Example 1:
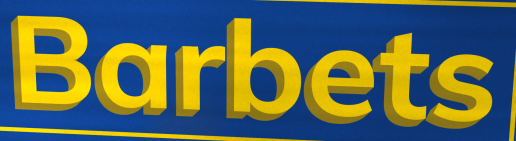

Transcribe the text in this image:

Barbets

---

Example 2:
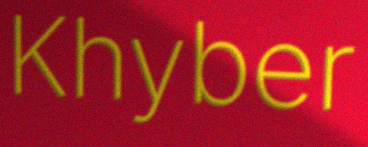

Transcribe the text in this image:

Khyber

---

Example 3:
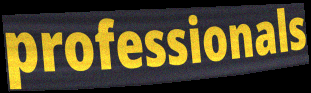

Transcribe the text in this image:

professionals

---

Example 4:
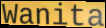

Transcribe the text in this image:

Wanita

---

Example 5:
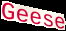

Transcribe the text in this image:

Geese